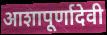
आशापूर्णादेवी